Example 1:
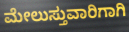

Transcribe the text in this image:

ಮೇಲುಸ್ತುವಾರಿಗಾಗಿ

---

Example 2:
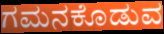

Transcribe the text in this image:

ಗಮನಕೊಡುವ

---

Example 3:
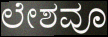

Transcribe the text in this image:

ಲೇಶವೂ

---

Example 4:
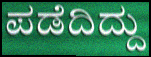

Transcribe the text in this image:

ಪಡೆದಿದ್ದು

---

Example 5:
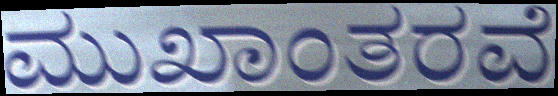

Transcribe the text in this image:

ಮುಖಾಂತರವೆ